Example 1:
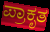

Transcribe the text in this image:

ಪ್ರಾಕೃತ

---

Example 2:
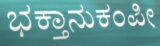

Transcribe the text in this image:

ಭಕ್ತಾನುಕಂಪೀ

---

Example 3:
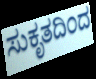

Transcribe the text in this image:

ಸುಕೃತದಿಂದ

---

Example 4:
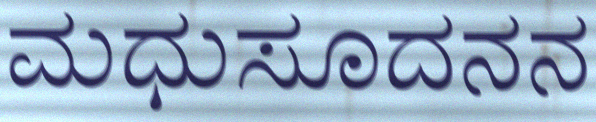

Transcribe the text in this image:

ಮಧುಸೂದನನ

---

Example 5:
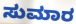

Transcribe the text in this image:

ಸುಮಾರ